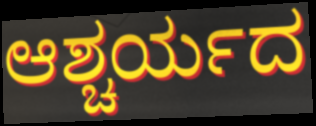
ಆಶ್ಚರ್ಯದ